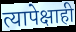
त्यापेक्षाही